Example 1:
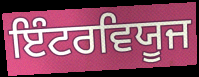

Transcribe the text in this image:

ਇੰਟਰਵਿਯੂਜ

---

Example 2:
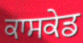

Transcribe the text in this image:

ਕਾਸਕੇਡ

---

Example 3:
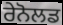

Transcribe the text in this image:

ਰੇਨੋਲਡ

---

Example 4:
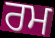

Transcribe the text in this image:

ਰਮ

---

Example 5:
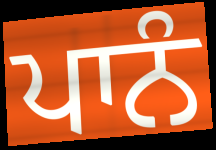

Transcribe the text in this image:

ਪਾਨੰ